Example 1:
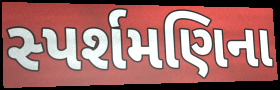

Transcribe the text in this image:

સ્પર્શમણિના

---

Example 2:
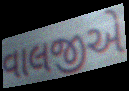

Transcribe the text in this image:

વાલજીએ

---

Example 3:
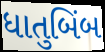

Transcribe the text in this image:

ધાતુબિંબ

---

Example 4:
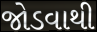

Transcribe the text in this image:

જોડવાથી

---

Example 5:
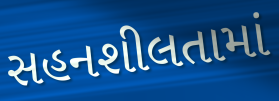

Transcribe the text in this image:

સહનશીલતામાં